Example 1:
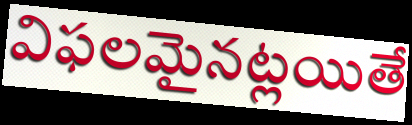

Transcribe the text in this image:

విఫలమైనట్లయితే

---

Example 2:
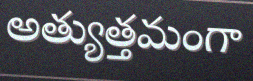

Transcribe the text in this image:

అత్యుత్తమంగా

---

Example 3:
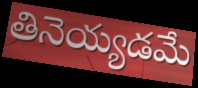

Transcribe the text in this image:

తినెయ్యడమే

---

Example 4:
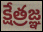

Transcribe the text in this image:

క్షేత్రజ్ఞ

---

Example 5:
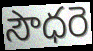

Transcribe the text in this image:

సౌధరె